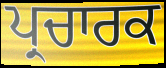
ਪ੍ਰਚਾਰਕ